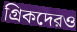
গ্রিকদেরও